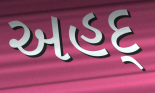
અહદ્